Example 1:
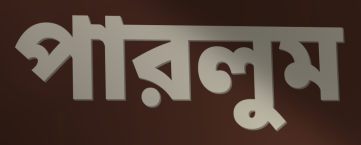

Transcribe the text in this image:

পারলুম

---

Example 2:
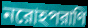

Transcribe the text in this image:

নরোহপরাণি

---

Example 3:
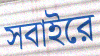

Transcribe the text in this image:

সবাইরে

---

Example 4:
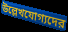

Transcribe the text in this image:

উল্লেখযোগ্যদের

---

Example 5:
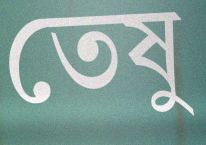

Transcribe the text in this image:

তেষু